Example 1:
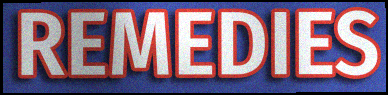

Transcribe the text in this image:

REMEDIES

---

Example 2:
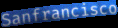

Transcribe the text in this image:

Sanfrancisco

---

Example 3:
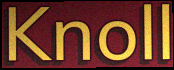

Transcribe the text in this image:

Knoll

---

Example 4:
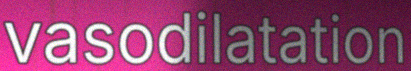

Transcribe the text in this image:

vasodilatation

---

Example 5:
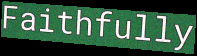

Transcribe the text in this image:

Faithfully